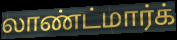
லாண்ட்மார்க்